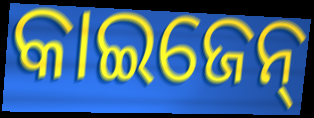
କାଇଜେନ୍